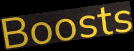
Boosts